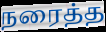
நரைத்த